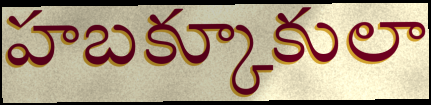
హబక్కూకులా